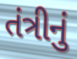
તંત્રીનું